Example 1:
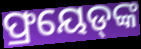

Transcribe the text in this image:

ଫ୍ରୟେଡ୍‍ଙ୍କ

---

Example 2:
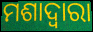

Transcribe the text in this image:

ମଶାଦ୍ୱାରା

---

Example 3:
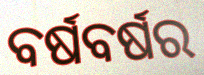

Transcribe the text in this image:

ବର୍ଷବର୍ଷର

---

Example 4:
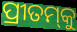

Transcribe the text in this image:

ପ୍ରୀତମ୍‌କୁ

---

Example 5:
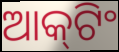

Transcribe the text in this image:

ଆକ୍‌ଟିଂ